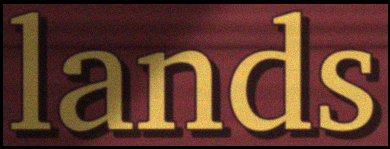
lands